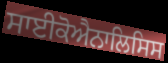
ਸਾਈਕੋਐਨਾਲਿਸਿਸ